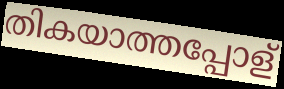
തികയാത്തപ്പോള്